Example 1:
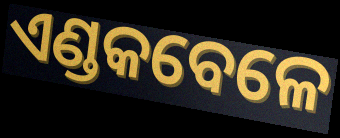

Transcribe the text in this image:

ଏଣ୍ଡକବେଳେ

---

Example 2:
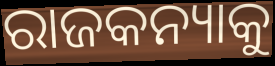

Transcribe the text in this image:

ରାଜକନ୍ୟାକୁ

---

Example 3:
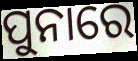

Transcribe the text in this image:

ପୁନାରେ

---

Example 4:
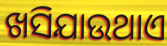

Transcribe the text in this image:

ଖସିଯାଉଥାଏ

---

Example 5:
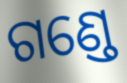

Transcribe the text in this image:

ଗଣ୍ଡେ